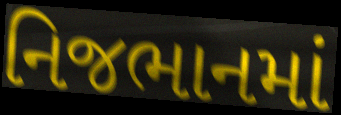
નિજભાનમાં